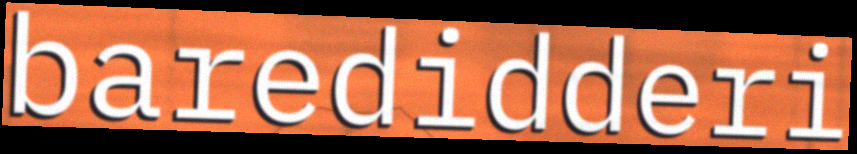
baredidderi